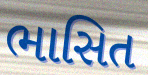
ભાસિત